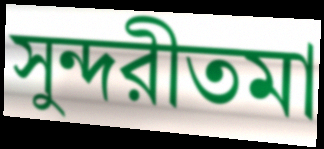
সুন্দরীতমা